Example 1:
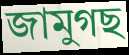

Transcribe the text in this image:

জামুগছ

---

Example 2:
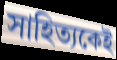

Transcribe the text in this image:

সাহিত্য়কেই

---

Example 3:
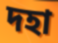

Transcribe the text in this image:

দহা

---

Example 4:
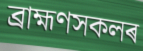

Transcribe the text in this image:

ব্ৰাহ্মণসকলৰ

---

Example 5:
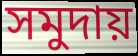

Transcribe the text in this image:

সমুদায়